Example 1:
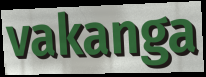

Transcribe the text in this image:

vakanga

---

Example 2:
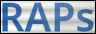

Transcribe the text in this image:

RAPs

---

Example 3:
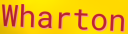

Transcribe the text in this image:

Wharton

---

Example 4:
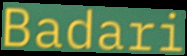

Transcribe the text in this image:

Badari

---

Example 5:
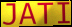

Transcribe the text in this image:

JATI